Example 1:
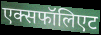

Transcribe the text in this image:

एक्सफॉलिएट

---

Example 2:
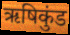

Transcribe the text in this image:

ऋषिकुंड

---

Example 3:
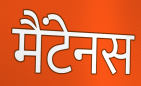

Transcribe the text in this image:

मैंटेनस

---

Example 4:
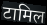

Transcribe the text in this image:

टामिल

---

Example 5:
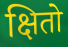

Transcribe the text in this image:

क्षितो